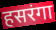
हसरंगा